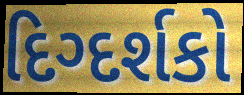
દિગ્દર્શકો